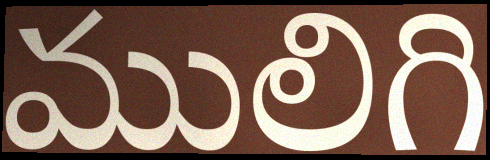
ములిగి